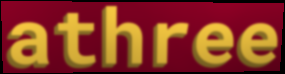
athree